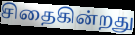
சிதைகின்றது